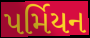
પર્મિયન